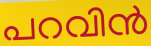
പറവിൻ